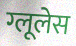
ग्लूलेस